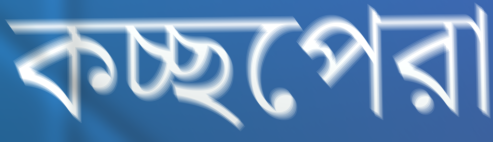
কচ্ছপেরা